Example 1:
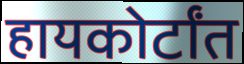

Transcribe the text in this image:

हायकोर्टांत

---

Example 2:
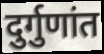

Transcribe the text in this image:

दुर्गुणांत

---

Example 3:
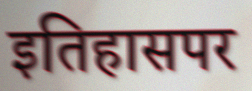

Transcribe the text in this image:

इतिहासपर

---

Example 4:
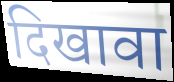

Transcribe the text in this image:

दिखावा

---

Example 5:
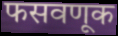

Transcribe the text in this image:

फसवणूक